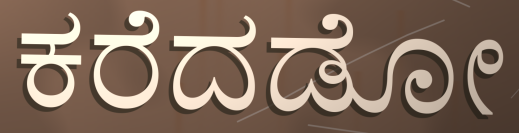
ಕರೆದಡೋ